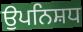
ਉਪਨਿਸ਼ਧ